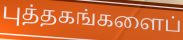
புத்தகங்களைப்